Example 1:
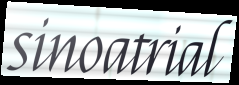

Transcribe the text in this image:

sinoatrial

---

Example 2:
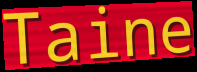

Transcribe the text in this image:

Taine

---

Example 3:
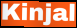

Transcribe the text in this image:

Kinjal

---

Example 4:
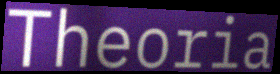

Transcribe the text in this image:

Theoria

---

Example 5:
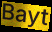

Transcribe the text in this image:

Bayt